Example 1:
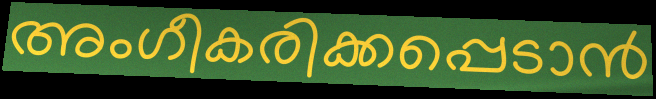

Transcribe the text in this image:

അംഗീകരിക്കപ്പെടാൻ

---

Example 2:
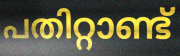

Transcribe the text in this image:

പതിറ്റാണ്ട്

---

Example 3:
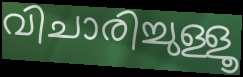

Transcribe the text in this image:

വിചാരിച്ചുള്ളൂ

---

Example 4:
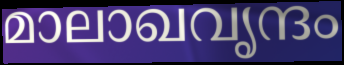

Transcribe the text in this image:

മാലാഖവൃന്ദം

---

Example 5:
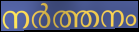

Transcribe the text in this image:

നർത്തനം